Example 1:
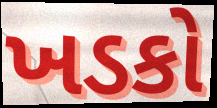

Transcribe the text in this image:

ખડકો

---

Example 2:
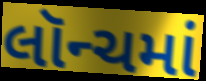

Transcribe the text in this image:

લૉન્ચમાં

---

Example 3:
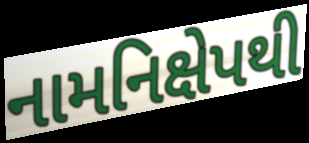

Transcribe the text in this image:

નામનિક્ષેપથી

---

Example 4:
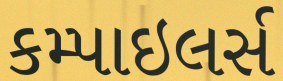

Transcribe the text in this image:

કમ્પાઇલર્સ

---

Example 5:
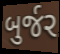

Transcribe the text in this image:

બુર્જર